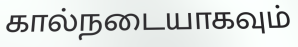
கால்நடையாகவும்